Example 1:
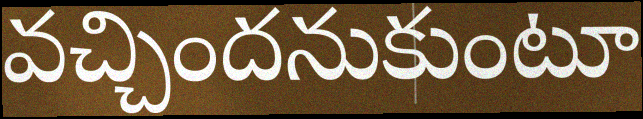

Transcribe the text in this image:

వచ్చిందనుకుంటూ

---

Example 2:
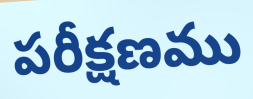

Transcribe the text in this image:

పరీక్షణము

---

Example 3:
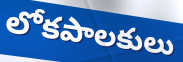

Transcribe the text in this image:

లోకపాలకులు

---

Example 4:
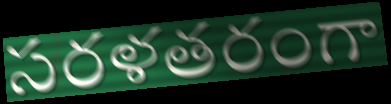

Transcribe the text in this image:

సరళతరంగా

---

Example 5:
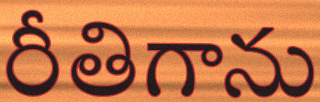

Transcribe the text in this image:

రీతిగాను